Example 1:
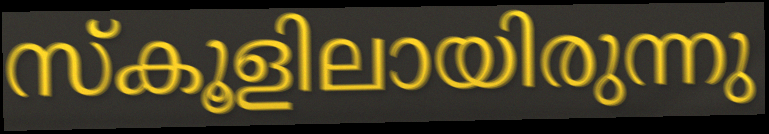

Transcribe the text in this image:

സ്കൂളിലായിരുന്നു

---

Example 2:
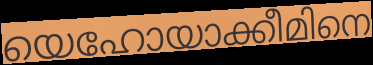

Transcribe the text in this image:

യെഹോയാക്കീമിനെ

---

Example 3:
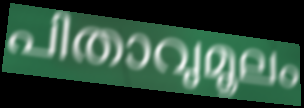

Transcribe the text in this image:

പിതാവുമൂലം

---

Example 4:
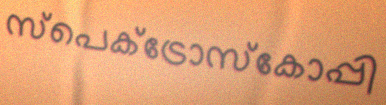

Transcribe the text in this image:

സ്പെക്ട്രോസ്കോപ്പി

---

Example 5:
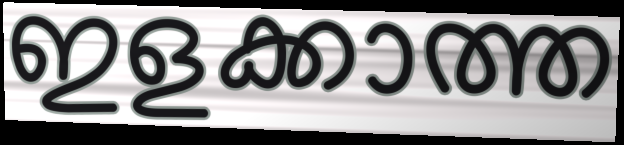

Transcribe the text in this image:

ഇളക്കാത്ത